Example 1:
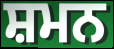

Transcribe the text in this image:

ਸ਼ਮਨ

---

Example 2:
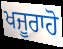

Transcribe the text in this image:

ਖਜੂਰਾਹੋ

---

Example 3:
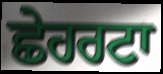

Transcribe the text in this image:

ਛੇਹਰਟਾ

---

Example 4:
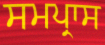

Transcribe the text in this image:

ਸਮਪ੍ਰਾਸ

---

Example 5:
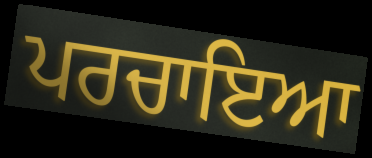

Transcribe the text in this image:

ਪਰਚਾਇਆ